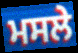
ਮਸਲੇ